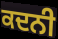
ਕਦਨੀ